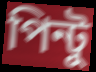
পিন্টু